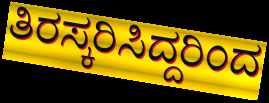
ತಿರಸ್ಕರಿಸಿದ್ದರಿಂದ